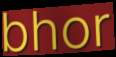
bhor